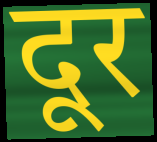
दूर